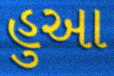
હુઆ